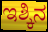
ಇಶ್ಕಿನ